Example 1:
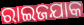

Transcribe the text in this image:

ରାଇଜଯାକ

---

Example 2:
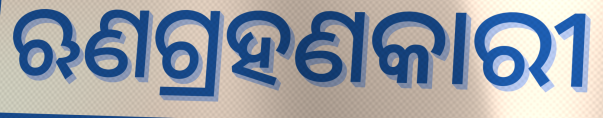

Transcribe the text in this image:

ଋଣଗ୍ରହଣକାରୀ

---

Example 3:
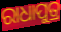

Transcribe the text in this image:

ରାଧାପୁତ୍ର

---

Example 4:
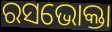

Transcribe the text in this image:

ରସଭୋକ୍ତା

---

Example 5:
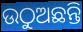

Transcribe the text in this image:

ଉଠୁଅଛନ୍ତି